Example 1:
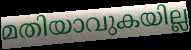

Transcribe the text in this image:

മതിയാവുകയില്ല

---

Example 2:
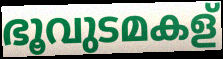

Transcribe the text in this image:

ഭൂവുടമകള്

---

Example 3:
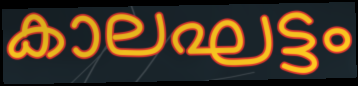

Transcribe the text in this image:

കാലഘട്ടം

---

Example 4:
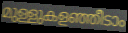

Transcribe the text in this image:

മുള്ളുകളഞ്ഞീടാം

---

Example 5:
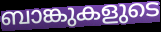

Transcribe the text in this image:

ബാങ്കുകളുടെ